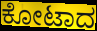
ಕೋಟಾದ